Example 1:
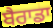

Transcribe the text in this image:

ਬੈਰਾਡਾ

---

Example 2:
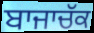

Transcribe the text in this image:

ਬਾਜਾਚੱਕ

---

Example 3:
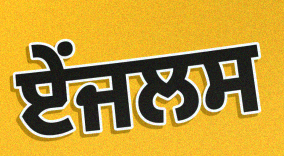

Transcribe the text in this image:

ਏਂਜਲਸ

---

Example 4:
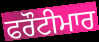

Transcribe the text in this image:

ਫਰੌਟੀਮਾਰ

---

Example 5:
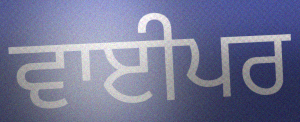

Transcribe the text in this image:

ਵਾਈਪਰ